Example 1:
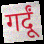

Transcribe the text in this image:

गर्दूं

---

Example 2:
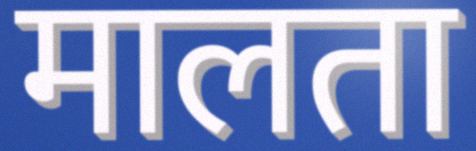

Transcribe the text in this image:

मालता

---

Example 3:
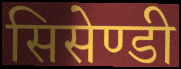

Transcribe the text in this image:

सिसेण्डी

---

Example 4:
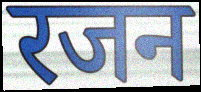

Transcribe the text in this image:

रजन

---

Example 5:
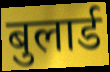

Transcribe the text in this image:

बुलार्ड